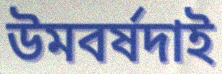
উমবৰ্ষদাই